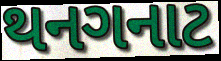
થનગનાટ